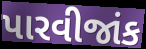
પારવીજાંક